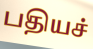
பதியச்